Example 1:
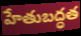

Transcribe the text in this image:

హేతుబద్ధత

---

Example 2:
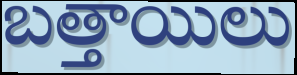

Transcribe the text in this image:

బత్తాయిలు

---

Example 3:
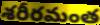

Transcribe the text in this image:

శరీరమంత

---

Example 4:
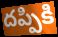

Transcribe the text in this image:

దప్పికి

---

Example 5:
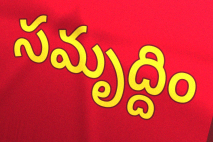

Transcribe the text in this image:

సమృద్దిం